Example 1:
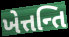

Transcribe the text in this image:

ખેત્તન્તિ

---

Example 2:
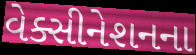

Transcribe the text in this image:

વેક્સીનેશનના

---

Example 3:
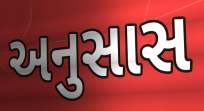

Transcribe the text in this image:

અનુસાસ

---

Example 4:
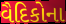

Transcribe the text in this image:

વૈદિકોના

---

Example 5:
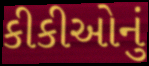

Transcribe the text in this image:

કીકીઓનું